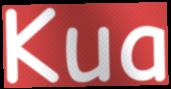
Kua